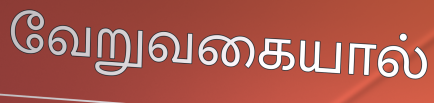
வேறுவகையால்